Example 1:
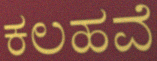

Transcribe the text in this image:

ಕಲಹವೆ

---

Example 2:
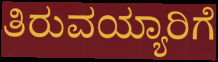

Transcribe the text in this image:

ತಿರುವಯ್ಯಾರಿಗೆ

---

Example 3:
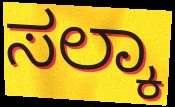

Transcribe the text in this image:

ಸಲ್ಕಾ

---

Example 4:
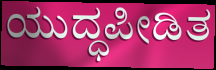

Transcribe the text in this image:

ಯುದ್ಧಪೀಡಿತ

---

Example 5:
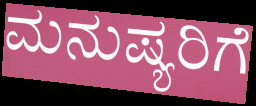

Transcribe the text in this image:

ಮನುಷ್ಯರಿಗೆ